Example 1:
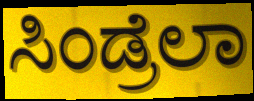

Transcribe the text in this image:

ಸಿಂಡ್ರೆಲಾ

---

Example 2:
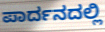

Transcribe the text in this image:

ಪಾರ್ದನದಲ್ಲಿ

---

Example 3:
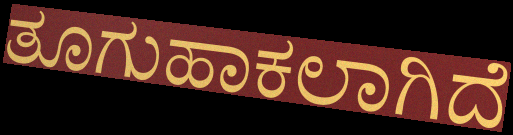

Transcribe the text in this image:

ತೂಗುಹಾಕಲಾಗಿದೆ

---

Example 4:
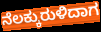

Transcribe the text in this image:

ನೆಲಕ್ಕುರುಳಿದಾಗ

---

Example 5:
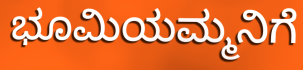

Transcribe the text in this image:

ಭೂಮಿಯಮ್ಮನಿಗೆ